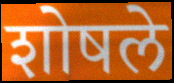
शोषले